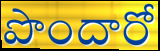
పొందారో